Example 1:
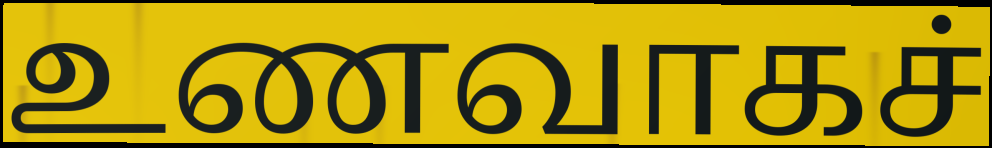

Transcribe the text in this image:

உணவாகச்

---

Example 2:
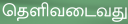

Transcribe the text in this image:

தெளிவடைவது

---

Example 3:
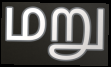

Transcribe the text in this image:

மறு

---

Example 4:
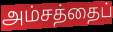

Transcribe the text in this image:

அம்சத்தைப்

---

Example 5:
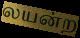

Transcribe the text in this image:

லயன்ற